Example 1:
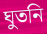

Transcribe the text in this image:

ঘুতনি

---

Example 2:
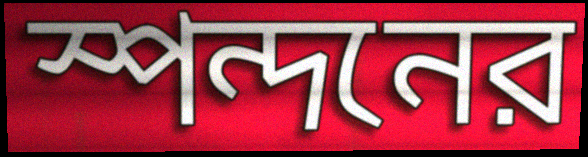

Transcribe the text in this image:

স্পন্দনের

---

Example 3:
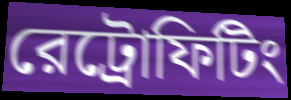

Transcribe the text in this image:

রেট্রোফিটিং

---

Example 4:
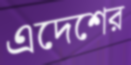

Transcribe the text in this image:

এদেশের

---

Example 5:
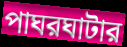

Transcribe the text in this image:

পাঘরঘাটার